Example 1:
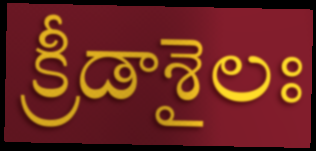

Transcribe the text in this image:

క్రీడాశైలః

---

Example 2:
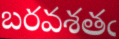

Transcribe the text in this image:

బరవశతఁ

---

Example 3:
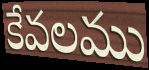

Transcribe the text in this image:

కేవలము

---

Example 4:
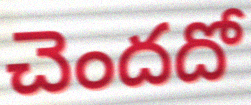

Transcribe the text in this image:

చెందదో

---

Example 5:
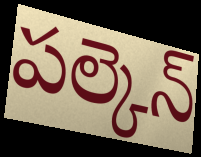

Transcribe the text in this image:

పల్కెన్